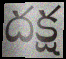
దక్ష